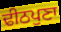
ਢੀਠਪੁਣਾ